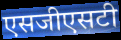
एसजीएसटी